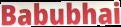
Babubhai